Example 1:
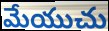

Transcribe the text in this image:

మేయుచు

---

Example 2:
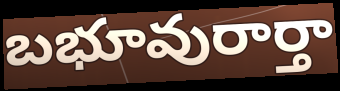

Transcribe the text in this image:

బభూవురార్తా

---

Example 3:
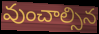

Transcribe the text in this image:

వుంచాల్సిన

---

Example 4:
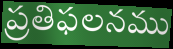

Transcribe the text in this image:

ప్రతిఫలనము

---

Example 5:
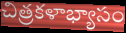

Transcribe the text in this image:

చిత్రకళాభ్యాసం